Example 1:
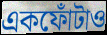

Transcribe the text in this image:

একফোঁটাও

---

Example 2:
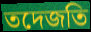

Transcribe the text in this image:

তদেজতি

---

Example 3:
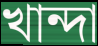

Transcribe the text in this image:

খান্দা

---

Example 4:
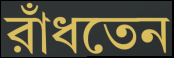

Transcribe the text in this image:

রাঁধতেন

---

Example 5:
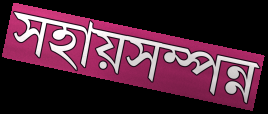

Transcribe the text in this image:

সহায়সম্পন্ন